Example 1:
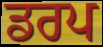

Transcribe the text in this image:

ਡਰਪ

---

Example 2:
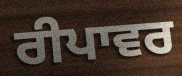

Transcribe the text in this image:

ਰੀਪਾਵਰ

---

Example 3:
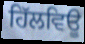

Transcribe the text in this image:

ਹਿੱਲਵਿਊ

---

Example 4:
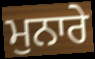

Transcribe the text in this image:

ਮੁਨਾਰੇ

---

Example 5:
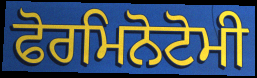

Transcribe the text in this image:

ਫੋਰਮਿਨੋਟੋਮੀ